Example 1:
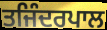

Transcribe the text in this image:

ਤਜਿੰਦਰਪਾਲ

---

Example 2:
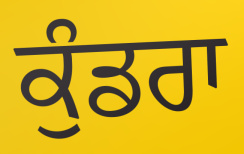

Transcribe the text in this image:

ਕੁੰਡਰਾ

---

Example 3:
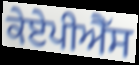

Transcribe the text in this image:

ਕੇਏਪੀਐੱਸ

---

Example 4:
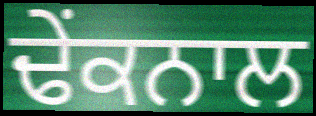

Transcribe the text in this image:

ਢੇਂਕਨਾਲ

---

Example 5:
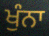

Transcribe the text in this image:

ਖੁੰਨਾ